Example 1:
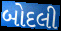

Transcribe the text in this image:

બોદલી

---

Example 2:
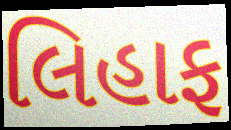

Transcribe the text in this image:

લિહાફ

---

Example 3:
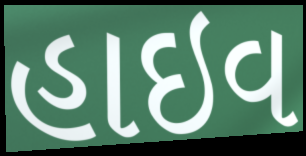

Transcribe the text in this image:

હાઇવ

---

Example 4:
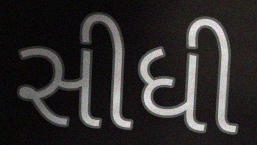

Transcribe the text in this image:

સીધી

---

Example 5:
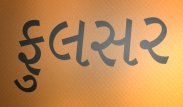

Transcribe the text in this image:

ફુલસર